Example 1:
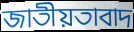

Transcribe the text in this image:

জাতীয়তাবাদ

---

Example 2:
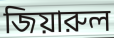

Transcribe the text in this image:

জিয়ারুল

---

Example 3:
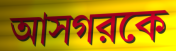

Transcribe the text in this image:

আসগরকে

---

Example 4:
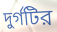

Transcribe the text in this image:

দুর্গটির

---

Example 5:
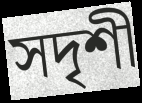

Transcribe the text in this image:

সদৃশী